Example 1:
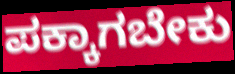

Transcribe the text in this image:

ಪಕ್ಕಾಗಬೇಕು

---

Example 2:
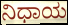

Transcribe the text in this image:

ನಿಧಾಯ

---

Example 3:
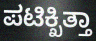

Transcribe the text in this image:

ಪಟಿಕ್ಖಿತ್ತಾ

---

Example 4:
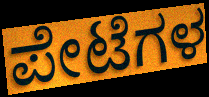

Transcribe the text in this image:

ಪೇಟೆಗಳ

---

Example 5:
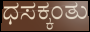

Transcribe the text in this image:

ಧಸಕ್ಕಂತು